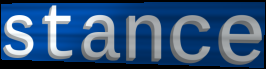
stance